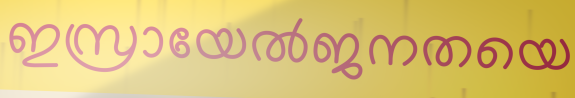
ഇസ്രായേൽജനതയെ